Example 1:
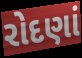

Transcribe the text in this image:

રોદણાં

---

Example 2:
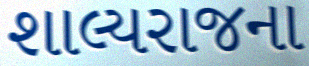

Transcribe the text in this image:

શાલ્યરાજના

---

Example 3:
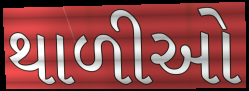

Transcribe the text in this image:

થાળીઓ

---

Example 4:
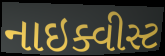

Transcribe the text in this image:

નાઇક્વીસ્ટ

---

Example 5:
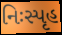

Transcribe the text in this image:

નિઃસ્પૃહ